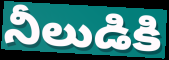
నీలుడికి